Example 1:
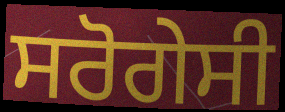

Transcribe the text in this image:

ਸਰੋਗੇਸੀ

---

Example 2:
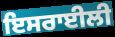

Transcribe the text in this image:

ਇਸਰਾਈਲੀ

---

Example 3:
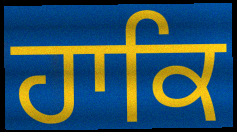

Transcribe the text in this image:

ਹਾਕਿ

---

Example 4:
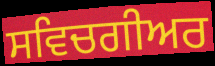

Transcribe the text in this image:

ਸਵਿਚਗੀਅਰ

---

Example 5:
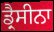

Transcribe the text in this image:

ਡ੍ਰੈਸੀਨਾ